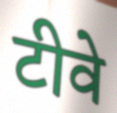
टीवे